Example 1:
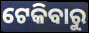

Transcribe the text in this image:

ଟେକିବାରୁ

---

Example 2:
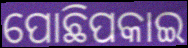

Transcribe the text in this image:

ପୋଛିପକାଇ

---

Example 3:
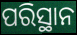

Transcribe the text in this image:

ପରିସ୍ଥାନ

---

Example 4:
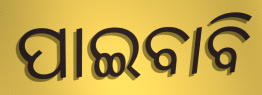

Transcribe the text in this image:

ପାଇବାବି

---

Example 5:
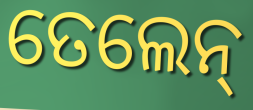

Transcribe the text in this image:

ତେଲେନ୍